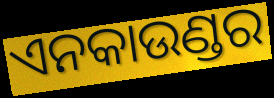
ଏନକାଉଣ୍ଡର